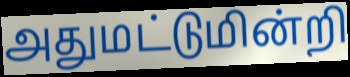
அதுமட்டுமின்றி